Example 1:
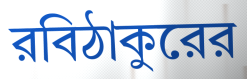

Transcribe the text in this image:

রবিঠাকুরের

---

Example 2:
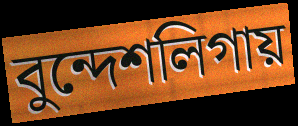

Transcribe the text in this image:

বুন্দেশলিগায়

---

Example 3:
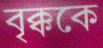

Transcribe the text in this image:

বৃক্ককে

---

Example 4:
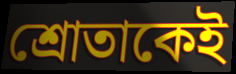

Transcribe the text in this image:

শ্রোতাকেই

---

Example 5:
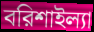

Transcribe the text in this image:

বরিশাইল্যা